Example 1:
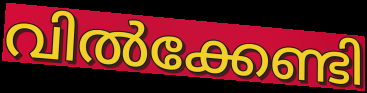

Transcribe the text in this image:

വിൽക്കേണ്ടി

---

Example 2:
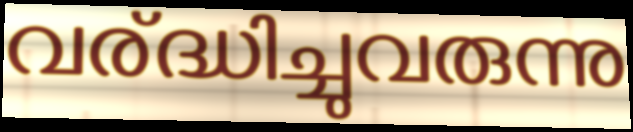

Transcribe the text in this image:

വര്ദ്ധിച്ചുവരുന്നു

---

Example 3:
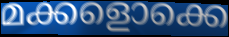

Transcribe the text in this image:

മക്കളൊക്കെ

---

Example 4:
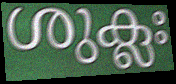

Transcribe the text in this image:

ശുക്ലഃ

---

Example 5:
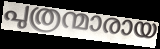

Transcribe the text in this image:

പുത്രന്മാരായ